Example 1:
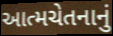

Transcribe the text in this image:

આત્મચેતનાનું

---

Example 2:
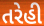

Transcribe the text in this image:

તરેહી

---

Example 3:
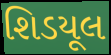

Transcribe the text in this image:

શિડયૂલ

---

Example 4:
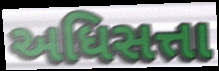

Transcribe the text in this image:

અધિસત્તા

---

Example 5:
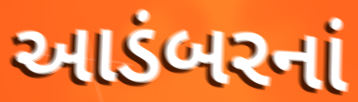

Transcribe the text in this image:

આડંબરનાં